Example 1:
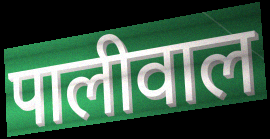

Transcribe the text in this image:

पालीवाल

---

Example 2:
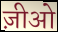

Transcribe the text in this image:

ज़ीओ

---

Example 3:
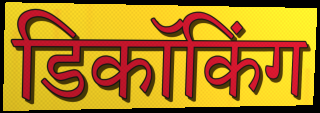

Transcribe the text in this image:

डिकॉकिंग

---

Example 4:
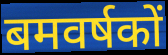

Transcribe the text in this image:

बमवर्षकों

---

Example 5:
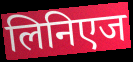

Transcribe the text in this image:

लिनिएज